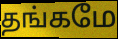
தங்கமே